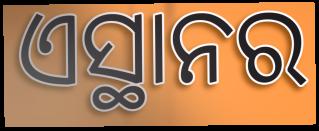
ଏସ୍ଥାନର